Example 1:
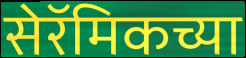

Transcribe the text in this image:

सेरॅमिकच्या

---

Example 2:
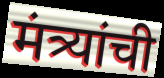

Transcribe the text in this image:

मंत्र्यांची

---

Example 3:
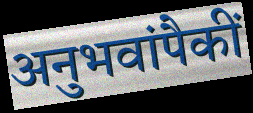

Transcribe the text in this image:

अनुभवांपैकीं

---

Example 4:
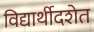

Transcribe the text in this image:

विद्यार्थीदशेत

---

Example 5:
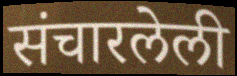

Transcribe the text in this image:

संचारलेली